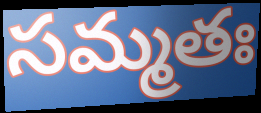
సమ్మతః